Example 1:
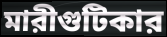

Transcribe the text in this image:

মারীগুটিকার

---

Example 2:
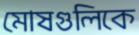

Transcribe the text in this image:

মোষগুলিকে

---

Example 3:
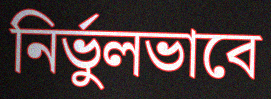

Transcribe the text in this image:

নির্ভুলভাবে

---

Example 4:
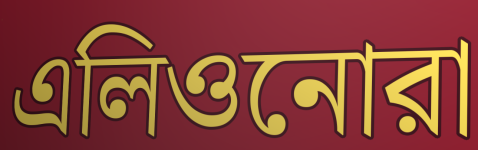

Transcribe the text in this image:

এলিওনোরা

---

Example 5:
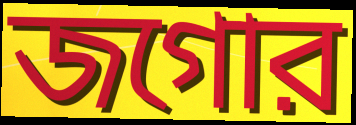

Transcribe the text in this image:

জগোর